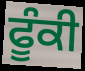
ਫੂੰਕੀ